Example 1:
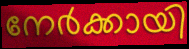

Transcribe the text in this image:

നേർക്കായി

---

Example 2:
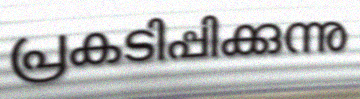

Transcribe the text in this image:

പ്രകടിപ്പിക്കുന്നു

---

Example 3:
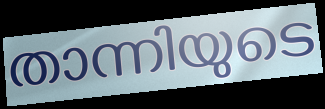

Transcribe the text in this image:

താന്നിയുടെ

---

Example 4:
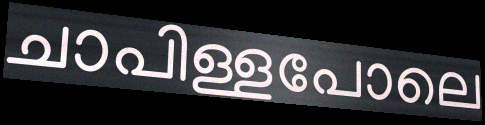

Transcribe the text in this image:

ചാപിള്ളപോലെ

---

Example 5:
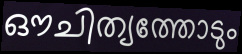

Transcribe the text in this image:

ഔചിത്യത്തോടും